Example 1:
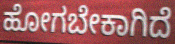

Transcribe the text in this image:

ಹೋಗಬೇಕಾಗಿದೆ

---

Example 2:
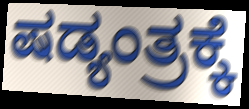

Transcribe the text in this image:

ಷಡ್ಯಂತ್ರಕ್ಕೆ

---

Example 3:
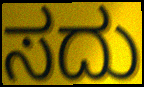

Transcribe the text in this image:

ಸದು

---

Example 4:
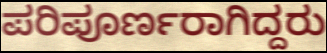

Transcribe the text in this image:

ಪರಿಪೂರ್ಣರಾಗಿದ್ದರು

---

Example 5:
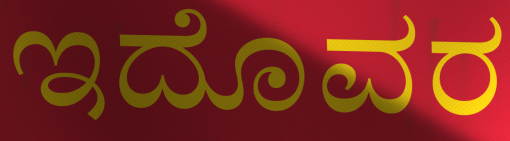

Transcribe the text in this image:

ಇದೊವರ